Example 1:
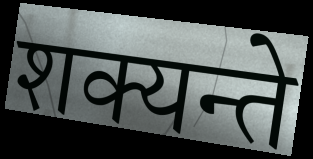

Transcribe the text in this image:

शक्यन्ते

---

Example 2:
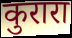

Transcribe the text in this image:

कुरारा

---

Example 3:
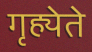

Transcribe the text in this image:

गृह्येते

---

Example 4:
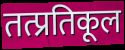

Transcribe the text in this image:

तत्प्रतिकूल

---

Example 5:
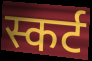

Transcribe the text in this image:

स्कर्ट